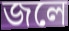
জলে